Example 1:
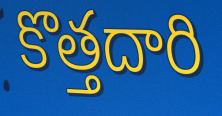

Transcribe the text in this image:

కొత్తదారి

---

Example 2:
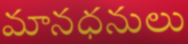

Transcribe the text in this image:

మానధనులు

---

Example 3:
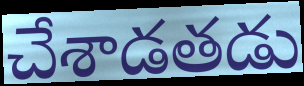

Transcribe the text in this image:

చేశాడతడు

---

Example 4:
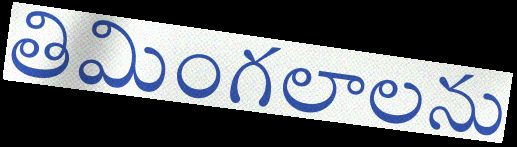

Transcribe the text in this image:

తిమింగలాలను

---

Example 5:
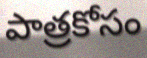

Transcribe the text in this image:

పాత్రకోసం